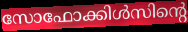
സോഫോക്കിൾസിന്റെ